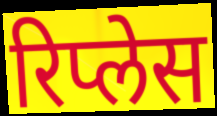
रिप्लेस